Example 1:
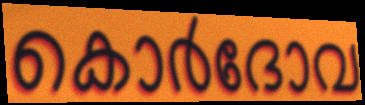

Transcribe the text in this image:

കൊർദോവ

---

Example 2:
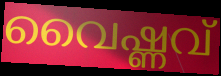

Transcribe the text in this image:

വൈഷ്ണവ്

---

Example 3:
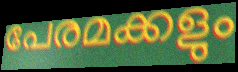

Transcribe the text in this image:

പേരമക്കളും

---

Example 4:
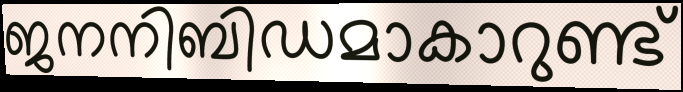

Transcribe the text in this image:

ജനനിബിഡമാകാറുണ്ട്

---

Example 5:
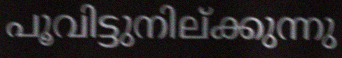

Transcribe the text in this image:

പൂവിട്ടുനില്ക്കുന്നു